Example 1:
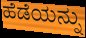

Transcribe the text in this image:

ಹೆಡೆಯನ್ನು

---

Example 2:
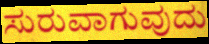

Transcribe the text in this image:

ಸುರುವಾಗುವುದು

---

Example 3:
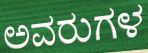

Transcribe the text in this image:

ಅವರುಗಳ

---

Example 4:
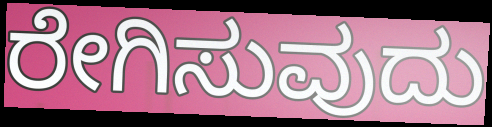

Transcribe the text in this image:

ರೇಗಿಸುವುದು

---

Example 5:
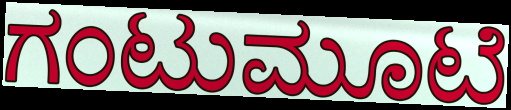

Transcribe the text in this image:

ಗಂಟುಮೂಟೆ